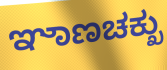
ಞಾಣಚಕ್ಖು